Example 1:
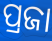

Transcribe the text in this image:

ପ୍ରଜା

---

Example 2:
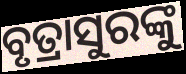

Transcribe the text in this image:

ବୃତ୍ରାସୁରଙ୍କୁ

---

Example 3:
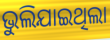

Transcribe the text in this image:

ଭୁଲିଯାଇଥିଲା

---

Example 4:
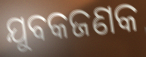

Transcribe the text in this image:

ଯୁବକଜଣକ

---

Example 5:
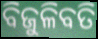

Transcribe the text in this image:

ବିଜୁଳିବତି